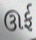
ઊર્ફ